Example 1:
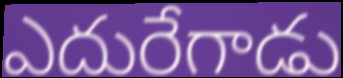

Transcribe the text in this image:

ఎదురేగాడు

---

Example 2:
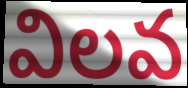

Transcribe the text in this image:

విలవ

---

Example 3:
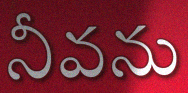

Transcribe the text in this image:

నీవను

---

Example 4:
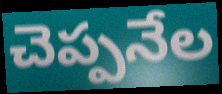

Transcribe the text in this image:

చెప్పనేల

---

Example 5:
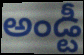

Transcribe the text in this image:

అండ్టీ